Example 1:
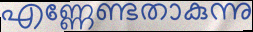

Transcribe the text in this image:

എണ്ണേണ്ടതാകുന്നു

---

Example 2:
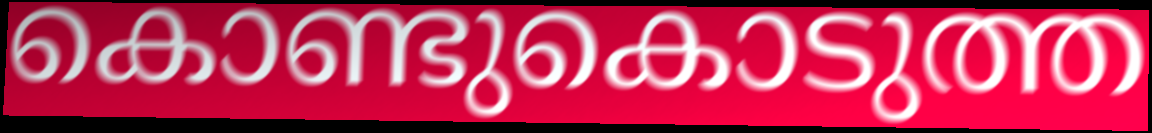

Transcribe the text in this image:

കൊണ്ടുകൊടുത്ത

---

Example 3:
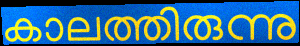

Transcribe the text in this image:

കാലത്തിരുന്നു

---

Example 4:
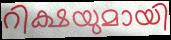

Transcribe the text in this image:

റിക്ഷയുമായി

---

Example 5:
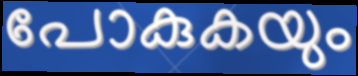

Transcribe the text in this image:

പോകുകയും